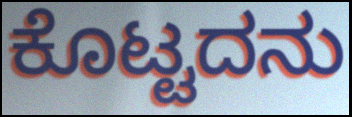
ಕೊಟ್ಟದನು